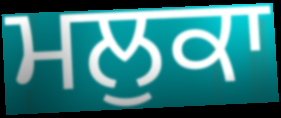
ਮਲੁਕਾ